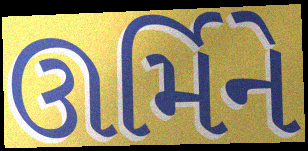
ઊર્મિને